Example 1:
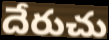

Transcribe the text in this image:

దేరుచు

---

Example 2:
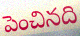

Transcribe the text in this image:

పెంచినది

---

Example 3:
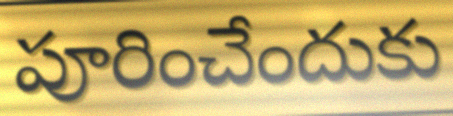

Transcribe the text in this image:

పూరించేందుకు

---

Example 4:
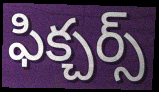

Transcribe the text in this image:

ఫిక్చర్స్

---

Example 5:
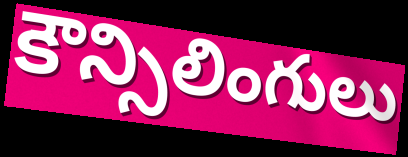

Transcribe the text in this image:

కౌన్సిలింగులు